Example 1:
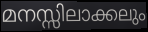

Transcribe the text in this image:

മനസ്സിലാക്കലും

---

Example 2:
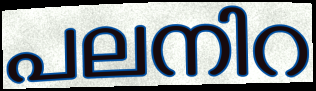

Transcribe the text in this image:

പലനിറ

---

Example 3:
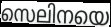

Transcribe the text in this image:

സെലിനയെ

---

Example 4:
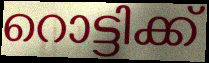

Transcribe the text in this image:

റൊട്ടിക്ക്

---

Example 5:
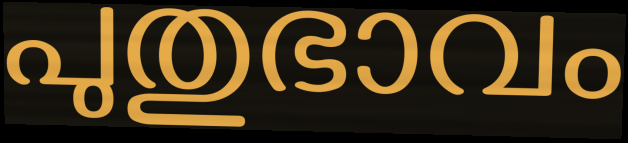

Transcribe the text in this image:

പുതുഭാവം